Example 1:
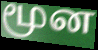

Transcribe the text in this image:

மூன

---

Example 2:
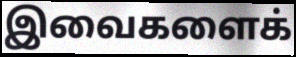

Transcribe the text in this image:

இவைகளைக்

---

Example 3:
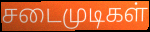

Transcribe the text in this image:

சடைமுடிகள்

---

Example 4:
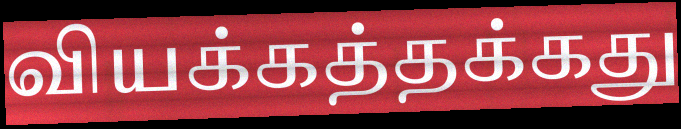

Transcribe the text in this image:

வியக்கத்தக்கது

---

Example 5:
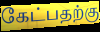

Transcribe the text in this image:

கேட்பதற்கு